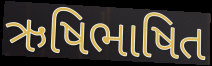
ઋષિભાષિત